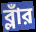
ব্লাঁর